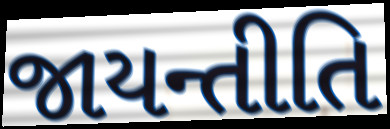
જાયન્તીતિ